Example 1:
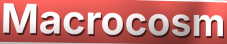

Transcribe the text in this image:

Macrocosm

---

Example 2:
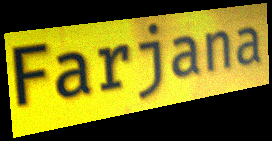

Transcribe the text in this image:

Farjana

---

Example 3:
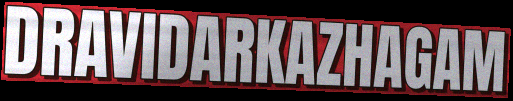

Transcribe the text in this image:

DRAVIDARKAZHAGAM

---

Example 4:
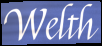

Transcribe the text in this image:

Welth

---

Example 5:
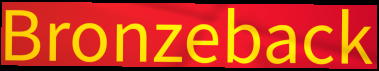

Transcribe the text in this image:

Bronzeback